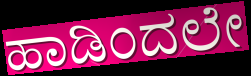
ಹಾಡಿಂದಲೇ